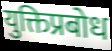
युक्तिप्रबोध